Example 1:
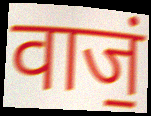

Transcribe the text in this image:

वाजं॒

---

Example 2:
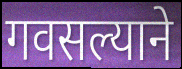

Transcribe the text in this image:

गवसल्याने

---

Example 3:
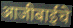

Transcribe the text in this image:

आजीबाईंचे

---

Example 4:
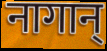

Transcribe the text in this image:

नागान्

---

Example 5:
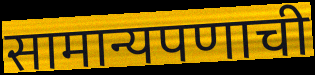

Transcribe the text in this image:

सामान्यपणाची